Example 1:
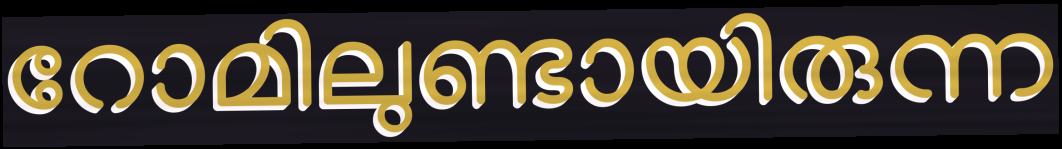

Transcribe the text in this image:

റോമിലുണ്ടായിരുന്ന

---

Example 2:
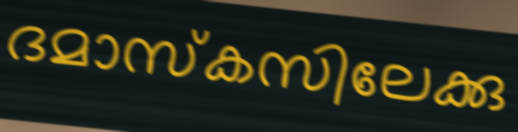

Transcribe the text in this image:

ദമാസ്കസിലേക്കു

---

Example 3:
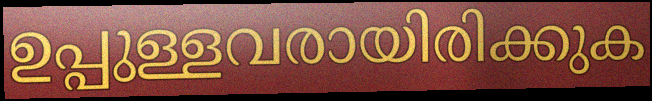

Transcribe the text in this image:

ഉപ്പുള്ളവരായിരിക്കുക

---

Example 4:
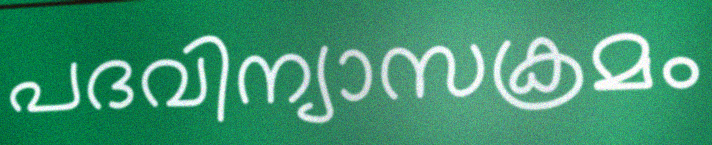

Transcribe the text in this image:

പദവിന്യാസക്രമം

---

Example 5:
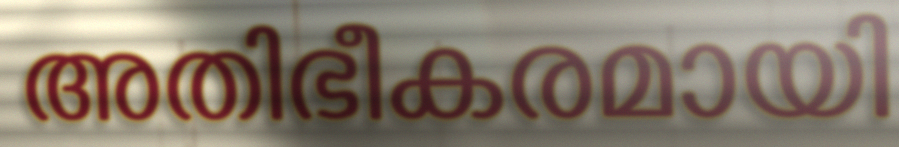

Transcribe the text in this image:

അതിഭീകരമായി